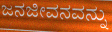
ಜನಜೀವನವನ್ನು